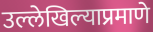
उल्लेखिल्याप्रमाणे